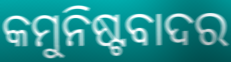
କମୁନିଷ୍ଟବାଦର